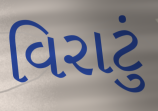
વિરાટું